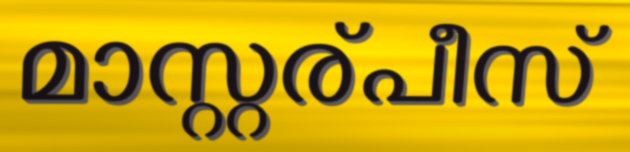
മാസ്റ്റര്പീസ്